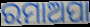
ରମାଅପା